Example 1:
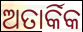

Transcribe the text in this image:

ଅତାର୍କିକ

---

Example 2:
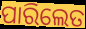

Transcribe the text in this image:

ପାରିଲେତ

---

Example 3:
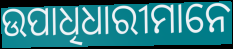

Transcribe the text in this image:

ଉପାଧିଧାରୀମାନେ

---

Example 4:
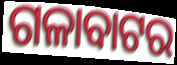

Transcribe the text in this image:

ଗଳାବାଟର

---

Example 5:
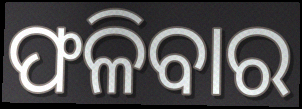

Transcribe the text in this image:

ଫଳିବାର